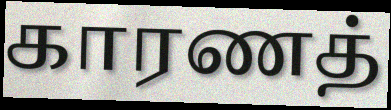
காரணத்